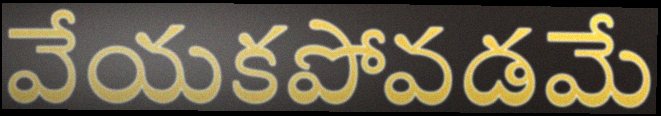
వేయకపోవడమే